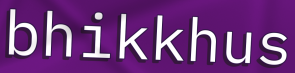
bhikkhus